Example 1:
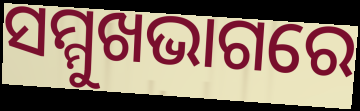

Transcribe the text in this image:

ସମ୍ମୁଖଭାଗରେ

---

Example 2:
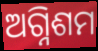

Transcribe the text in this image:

ଅଗ୍ନିଶମ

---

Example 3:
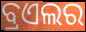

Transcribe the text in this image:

ବ୍ରଏଲର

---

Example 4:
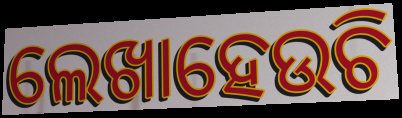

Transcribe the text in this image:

ଲେଖାହେଉଚି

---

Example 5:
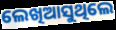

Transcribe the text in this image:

ଲେଖିଆସୁଥିଲେ